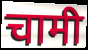
चामी